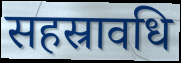
सहस्रावधि